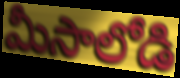
మీసాలోడి